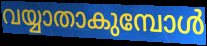
വയ്യാതാകുമ്പോൾ